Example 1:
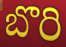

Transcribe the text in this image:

బొరి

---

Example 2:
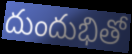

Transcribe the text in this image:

దుందుభితో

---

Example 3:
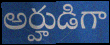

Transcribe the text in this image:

అర్హుడిగా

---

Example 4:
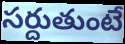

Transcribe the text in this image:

సర్దుతుంటే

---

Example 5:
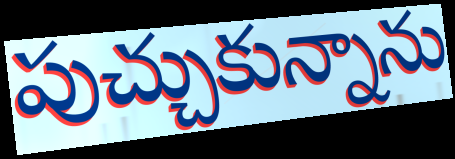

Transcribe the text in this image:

పుచ్చుకున్నాను